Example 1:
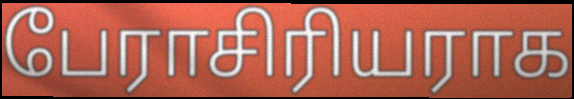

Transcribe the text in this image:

பேராசிரியராக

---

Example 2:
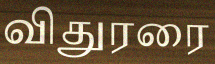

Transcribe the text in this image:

விதுரரை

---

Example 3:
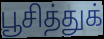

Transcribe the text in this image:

பூசித்துக்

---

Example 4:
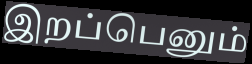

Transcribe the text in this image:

இறப்பெனும்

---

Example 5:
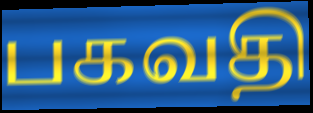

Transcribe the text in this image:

பகவதி